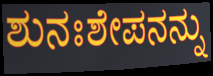
ಶುನಃಶೇಪನನ್ನು